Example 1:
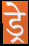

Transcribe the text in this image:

ड्रे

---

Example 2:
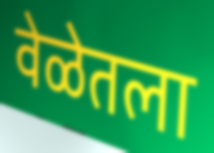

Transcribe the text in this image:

वेळेतला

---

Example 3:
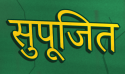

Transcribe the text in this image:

सुपूजित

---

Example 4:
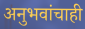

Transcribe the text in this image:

अनुभवांचाही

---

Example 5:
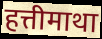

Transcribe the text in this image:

हत्तीमाथा